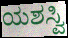
ಯಶಸ್ವಿ